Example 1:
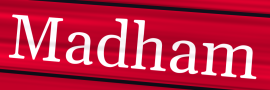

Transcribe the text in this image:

Madham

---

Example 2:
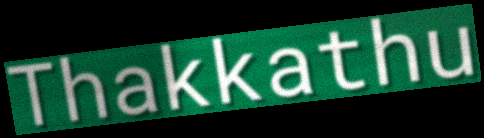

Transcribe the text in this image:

Thakkathu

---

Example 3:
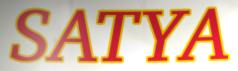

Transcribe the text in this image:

SATYA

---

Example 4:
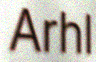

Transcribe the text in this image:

Arhl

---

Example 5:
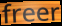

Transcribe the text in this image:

freer